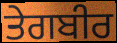
ਤੇਗਬੀਰ